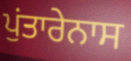
ਪੁਂਤਾਰੇਨਾਸ